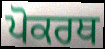
ਪੋਕਰਥ